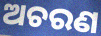
ଅଚରଣ